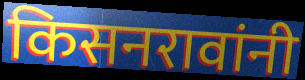
किसनरावांनी